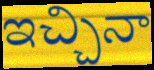
ఇచ్చినా